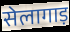
सेलागाड़